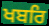
ਖਬਰਿ